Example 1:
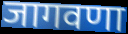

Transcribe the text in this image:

जागवणा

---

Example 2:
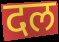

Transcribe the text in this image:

दल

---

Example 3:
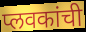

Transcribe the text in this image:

प्लवकांची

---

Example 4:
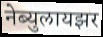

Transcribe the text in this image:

नेब्युलायझर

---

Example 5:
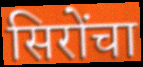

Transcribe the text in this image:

सिरोंचा